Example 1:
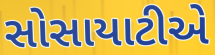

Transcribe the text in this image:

સોસાયાટીએ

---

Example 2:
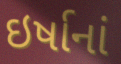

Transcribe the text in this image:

ઇર્ષાનાં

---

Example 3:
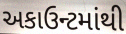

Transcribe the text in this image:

અકાઉન્ટમાંથી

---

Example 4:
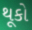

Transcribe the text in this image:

થૂકો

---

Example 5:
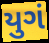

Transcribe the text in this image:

યુગં